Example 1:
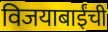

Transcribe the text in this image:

विजयाबाईंची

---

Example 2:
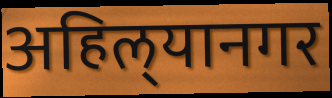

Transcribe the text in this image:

अहिल्यानगर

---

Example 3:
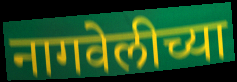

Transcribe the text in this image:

नागवेलीच्या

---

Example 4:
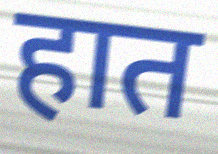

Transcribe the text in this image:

हात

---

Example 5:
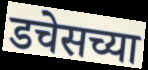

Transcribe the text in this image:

डचेसच्या